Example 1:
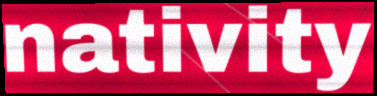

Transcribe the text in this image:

nativity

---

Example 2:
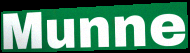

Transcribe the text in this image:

Munne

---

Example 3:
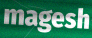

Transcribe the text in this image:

magesh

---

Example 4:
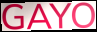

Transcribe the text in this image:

GAYO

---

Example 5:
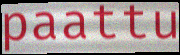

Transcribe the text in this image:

paattu